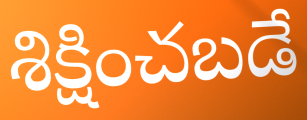
శిక్షించబడే